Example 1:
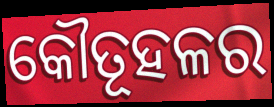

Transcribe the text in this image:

କୌତୂହଳର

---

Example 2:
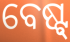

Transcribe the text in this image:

ବେଷ୍ଟ୍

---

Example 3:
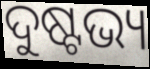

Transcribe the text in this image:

ଦୁଷ୍ଟଭ୍ୟ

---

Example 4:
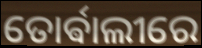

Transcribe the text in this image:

ତୋର୍ଵାଲୀରେ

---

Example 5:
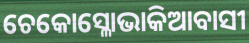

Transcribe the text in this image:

ଚେକୋସ୍ଳୋଭାକିଆବାସୀ